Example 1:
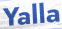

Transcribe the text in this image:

Yalla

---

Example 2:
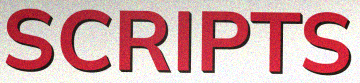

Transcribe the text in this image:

SCRIPTS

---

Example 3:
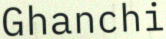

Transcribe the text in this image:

Ghanchi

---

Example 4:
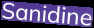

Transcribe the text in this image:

Sanidine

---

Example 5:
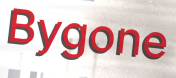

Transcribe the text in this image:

Bygone